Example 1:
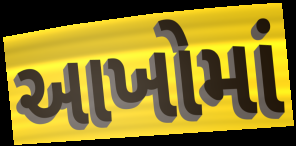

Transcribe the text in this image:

આખોમાં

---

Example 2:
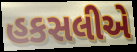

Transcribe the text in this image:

હકસલીએ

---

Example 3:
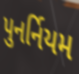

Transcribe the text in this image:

પુનર્નિયમ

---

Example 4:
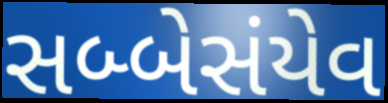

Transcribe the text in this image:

સબ્બેસંયેવ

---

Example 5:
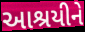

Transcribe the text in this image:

આશ્રયીને